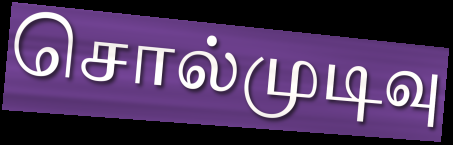
சொல்முடிவு